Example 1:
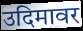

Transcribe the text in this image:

उदिमावर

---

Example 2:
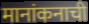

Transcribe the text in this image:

मानांकनाची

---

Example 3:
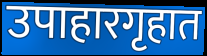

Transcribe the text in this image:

उपाहारगृहात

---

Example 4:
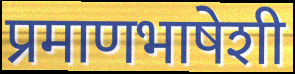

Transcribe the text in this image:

प्रमाणभाषेशी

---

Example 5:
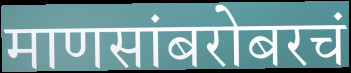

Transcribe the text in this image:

माणसांबरोबरचं